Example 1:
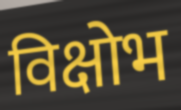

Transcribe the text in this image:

विक्षोभ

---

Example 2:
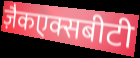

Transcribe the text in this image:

ज़ैकएक्सबीटी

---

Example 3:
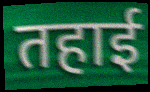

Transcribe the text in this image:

तहाई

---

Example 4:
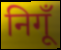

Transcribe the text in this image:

निगूँ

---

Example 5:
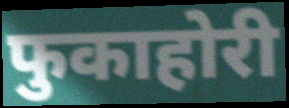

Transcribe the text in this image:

फुकाहोरी